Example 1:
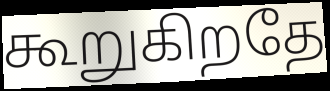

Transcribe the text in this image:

கூறுகிறதே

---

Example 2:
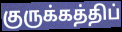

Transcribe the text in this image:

குருக்கத்திப்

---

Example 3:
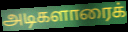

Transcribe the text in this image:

அடிகளாரைக்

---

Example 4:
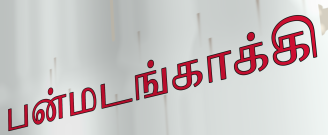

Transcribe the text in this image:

பன்மடங்காக்கி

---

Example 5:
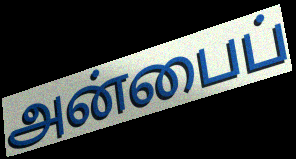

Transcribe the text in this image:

அன்பைப்